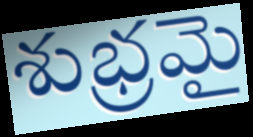
శుభ్రమై